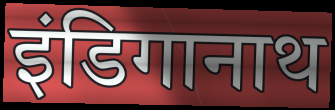
इंडिगानाथ